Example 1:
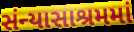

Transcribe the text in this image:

સંન્યાસાશ્રમમાં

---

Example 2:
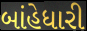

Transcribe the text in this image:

બાંહેધારી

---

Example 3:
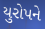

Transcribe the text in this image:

યુરોપને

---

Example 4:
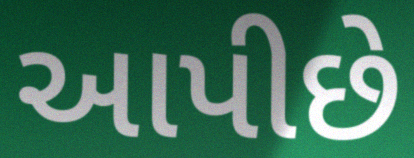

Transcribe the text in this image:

આપીછે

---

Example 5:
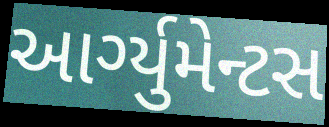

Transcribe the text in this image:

આર્ગ્યુમેન્ટસ